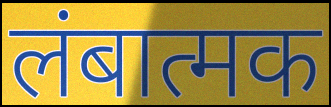
लंबात्मक